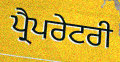
ਪ੍ਰੈਪਰੇਟਰੀ